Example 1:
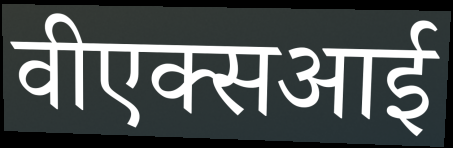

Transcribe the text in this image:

वीएक्सआई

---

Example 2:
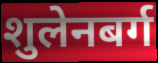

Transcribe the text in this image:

शुलेनबर्ग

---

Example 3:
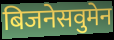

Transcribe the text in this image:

बिजनेसवुमेन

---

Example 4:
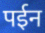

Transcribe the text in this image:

पईन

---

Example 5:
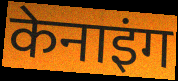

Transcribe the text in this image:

केनाइंग